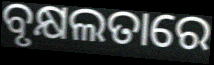
ବୃକ୍ଷଲତାରେ